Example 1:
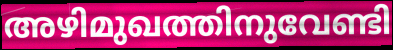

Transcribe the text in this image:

അഴിമുഖത്തിനുവേണ്ടി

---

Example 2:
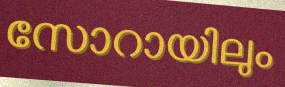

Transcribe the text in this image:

സോറായിലും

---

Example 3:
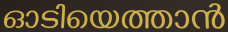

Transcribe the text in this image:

ഓടിയെത്താൻ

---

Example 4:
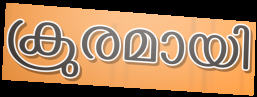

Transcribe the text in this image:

ക്രുരമായി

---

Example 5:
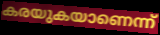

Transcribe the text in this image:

കരയുകയാണെന്ന്